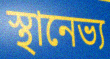
স্থানেভ্য